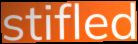
stifled